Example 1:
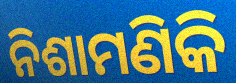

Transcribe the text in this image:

ନିଶାମଣିକି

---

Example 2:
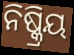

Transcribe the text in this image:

ନିଷ୍କ୍ରିୟ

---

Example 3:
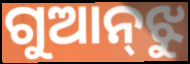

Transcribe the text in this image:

ଗୁଆନ୍‌ଝୁ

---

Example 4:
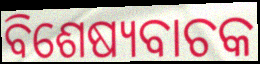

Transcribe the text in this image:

ବିଶେଷ୍ୟବାଚକ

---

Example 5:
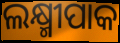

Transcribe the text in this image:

ଲକ୍ଷ୍ମୀପାକ